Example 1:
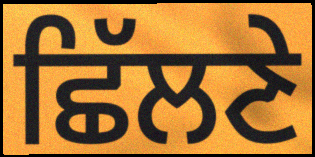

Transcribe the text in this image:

ਛਿੱਲਣੇ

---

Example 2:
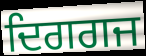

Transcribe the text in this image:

ਦਿਗਗਜ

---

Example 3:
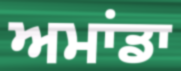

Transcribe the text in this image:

ਅਮਾਂਡਾ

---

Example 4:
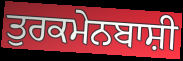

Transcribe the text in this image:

ਤੁਰਕਮੇਨਬਾਸ਼ੀ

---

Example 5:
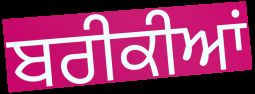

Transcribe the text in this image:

ਬਰੀਕੀਆਂ